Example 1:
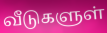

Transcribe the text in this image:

வீடுகளுள்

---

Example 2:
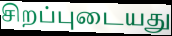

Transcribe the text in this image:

சிறப்புடையது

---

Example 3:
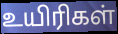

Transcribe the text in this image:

உயிரிகள்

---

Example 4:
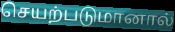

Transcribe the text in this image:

செயற்படுமானால்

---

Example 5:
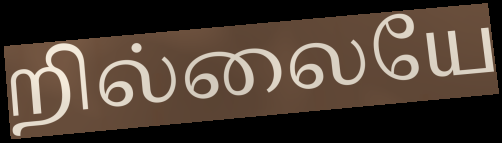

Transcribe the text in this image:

றில்லையே